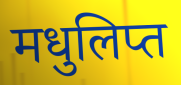
मधुलिप्त